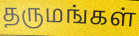
தருமங்கள்